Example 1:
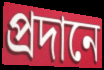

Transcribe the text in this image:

প্ৰদানে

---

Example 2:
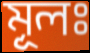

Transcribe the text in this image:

মূলঃ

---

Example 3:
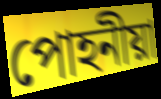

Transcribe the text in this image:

পোহনীয়া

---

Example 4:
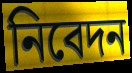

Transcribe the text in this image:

নিবেদন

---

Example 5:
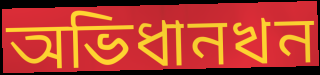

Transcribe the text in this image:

অভিধানখন